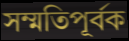
সম্মতিপূর্বক